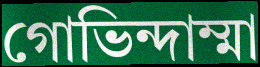
গোভিন্দাম্মা